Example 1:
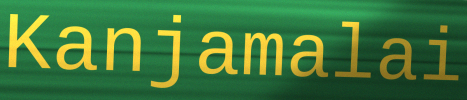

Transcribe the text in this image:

Kanjamalai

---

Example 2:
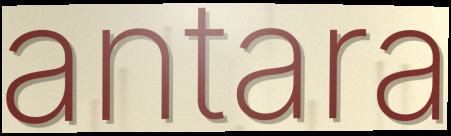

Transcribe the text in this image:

antara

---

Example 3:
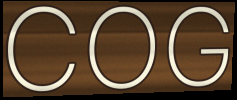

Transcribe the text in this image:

COG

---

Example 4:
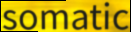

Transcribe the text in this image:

somatic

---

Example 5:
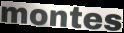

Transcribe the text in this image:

montes